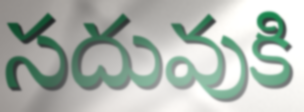
సదువుకి